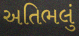
અતિભલું